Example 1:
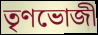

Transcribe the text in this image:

তৃণভোজী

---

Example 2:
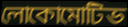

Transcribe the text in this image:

লোকোমোটিভ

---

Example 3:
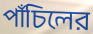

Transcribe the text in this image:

পাঁচিলের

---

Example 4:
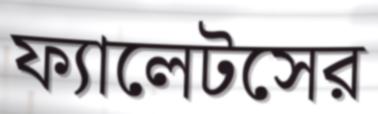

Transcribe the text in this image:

ফ্যালেটসের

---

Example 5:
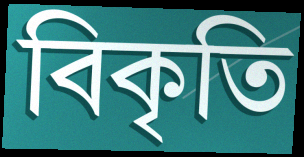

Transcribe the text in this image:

বিকৃতি